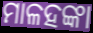
ମାଳହଙ୍କା